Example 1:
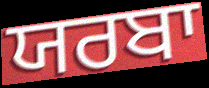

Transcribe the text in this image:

ਯਰਬਾ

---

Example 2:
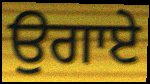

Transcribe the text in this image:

ਉਗਾਏ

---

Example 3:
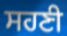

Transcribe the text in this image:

ਸਹਣੀ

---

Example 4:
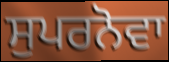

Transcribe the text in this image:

ਸੁਪਰਨੋਵਾ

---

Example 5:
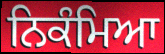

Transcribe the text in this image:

ਨਿਕੰਮਿਆ